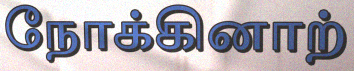
நோக்கினாற்